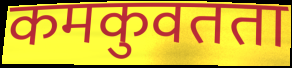
कमकुवतता